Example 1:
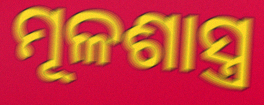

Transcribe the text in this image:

ମୂଳଶାସ୍ତ୍ର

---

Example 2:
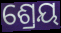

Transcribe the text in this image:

ଶ୍ରେୟ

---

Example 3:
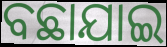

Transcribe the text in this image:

ବଛାଯାଇ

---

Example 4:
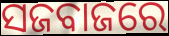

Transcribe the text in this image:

ସଜବାଜରେ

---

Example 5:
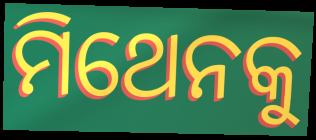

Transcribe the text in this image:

ମିଥେନକୁ